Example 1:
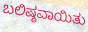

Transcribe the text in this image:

ಬಲಿಷ್ಠವಾಯಿತು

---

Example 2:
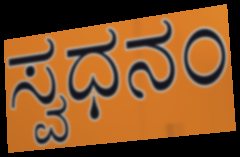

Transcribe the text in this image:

ಸ್ವಧನಂ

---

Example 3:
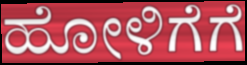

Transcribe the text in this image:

ಹೋಳಿಗೆಗೆ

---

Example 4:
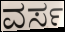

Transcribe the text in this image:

ವರ್ಸ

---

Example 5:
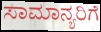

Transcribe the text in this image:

ಸಾಮಾನ್ಯರಿಗೆ